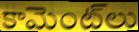
కామెంట్‌లు